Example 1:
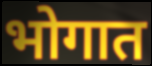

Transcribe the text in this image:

भोगात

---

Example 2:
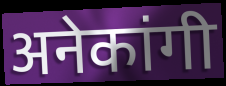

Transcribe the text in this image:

अनेकांगी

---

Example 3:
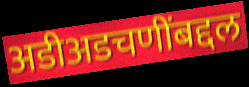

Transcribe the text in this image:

अडीअडचणींबद्दल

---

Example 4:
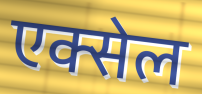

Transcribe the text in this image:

एक्सेल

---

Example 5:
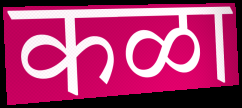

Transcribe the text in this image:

कळा